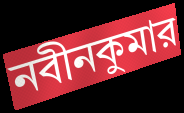
নবীনকুমার